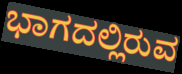
ಭಾಗದಲ್ಲಿರುವ